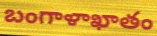
బంగాళాఖాతం